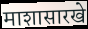
माशासारखे